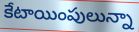
కేటాయింపులున్నా